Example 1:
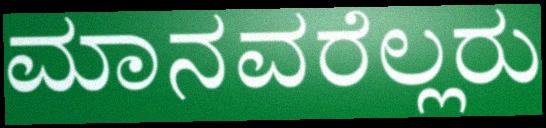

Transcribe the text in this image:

ಮಾನವರೆಲ್ಲರು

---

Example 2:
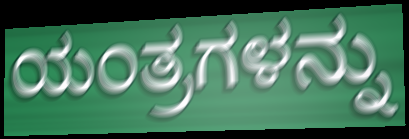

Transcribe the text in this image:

ಯಂತ್ರಗಳನ್ನು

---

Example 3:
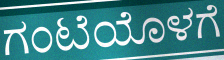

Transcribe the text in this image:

ಗಂಟೆಯೊಳಗೆ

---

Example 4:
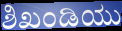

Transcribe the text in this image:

ಶಿಖಂಡಿಯು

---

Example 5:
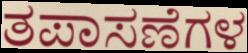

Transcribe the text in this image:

ತಪಾಸಣೆಗಳ